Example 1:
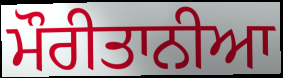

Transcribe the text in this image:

ਮੌਰੀਤਾਨੀਆ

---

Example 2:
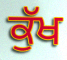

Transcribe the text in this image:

ਕੁੱਖ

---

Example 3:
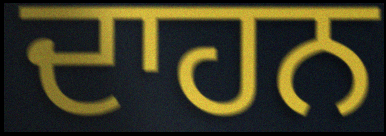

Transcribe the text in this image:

ਦਾਹਨ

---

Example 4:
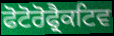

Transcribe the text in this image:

ਫੋਟੋਰੋਫ੍ਰੈਕਟਿਵ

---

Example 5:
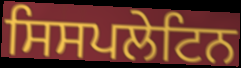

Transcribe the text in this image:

ਸਿਸਪਲੇਟਿਨ